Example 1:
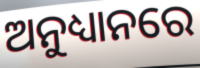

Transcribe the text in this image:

ଅନୁଧ୍ୟାନରେ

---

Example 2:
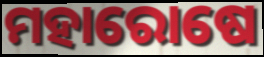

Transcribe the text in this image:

ମହାରୋଷେ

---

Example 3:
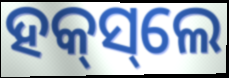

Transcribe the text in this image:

ହକ୍‌ସ୍‌ଲେ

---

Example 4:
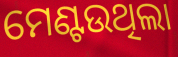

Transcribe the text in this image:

ମେଣ୍ଟଉଥିଲା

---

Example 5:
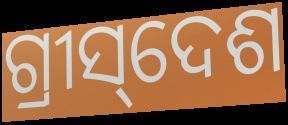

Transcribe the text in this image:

ଗ୍ରୀସ୍‌ଦେଶ